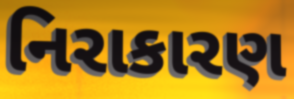
નિરાકારણ